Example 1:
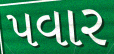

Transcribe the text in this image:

પવાર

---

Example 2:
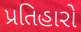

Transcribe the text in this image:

પ્રતિહારો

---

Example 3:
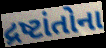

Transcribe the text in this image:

દ્રષ્ટાંતોના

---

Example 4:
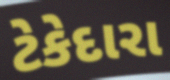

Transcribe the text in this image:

ટેકેદારા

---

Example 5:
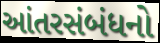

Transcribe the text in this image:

આંતરસંબંધનો